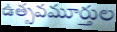
ఉత్సవమూర్తుల